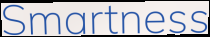
Smartness